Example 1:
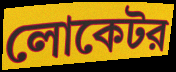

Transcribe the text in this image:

লোকেটর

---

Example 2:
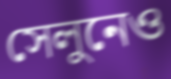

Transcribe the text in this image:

সেলুনেও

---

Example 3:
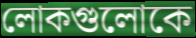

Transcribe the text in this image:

লোকগুলোকে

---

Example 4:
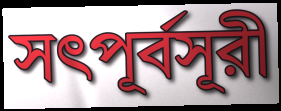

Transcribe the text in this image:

সৎপূর্বসূরী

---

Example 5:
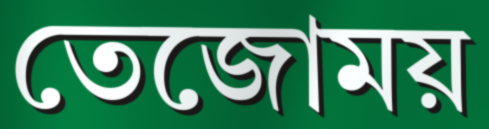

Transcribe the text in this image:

তেজোময়